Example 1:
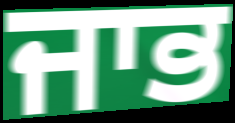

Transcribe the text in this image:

ਜਾਭ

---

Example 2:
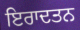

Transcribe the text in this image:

ਇਰਾਦਤਨ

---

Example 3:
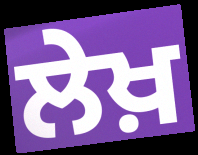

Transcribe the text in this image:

ਲੇਖ਼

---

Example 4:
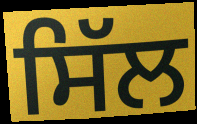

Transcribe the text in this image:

ਸਿੱਲ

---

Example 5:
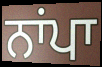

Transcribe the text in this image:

ਨਾਂਪਾ